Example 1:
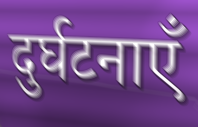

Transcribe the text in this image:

दुर्घटनाएँ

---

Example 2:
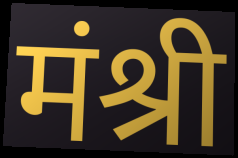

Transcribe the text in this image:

मंश्री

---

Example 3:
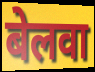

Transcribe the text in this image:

बेलवा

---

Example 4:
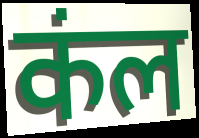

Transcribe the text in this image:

कंल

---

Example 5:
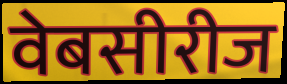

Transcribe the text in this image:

वेबसीरीज